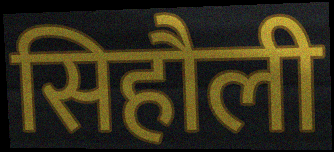
सिहौली